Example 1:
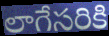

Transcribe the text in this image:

లాగేసరికి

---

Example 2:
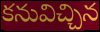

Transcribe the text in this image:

కనువిచ్చిన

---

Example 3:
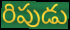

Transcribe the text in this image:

రిపుడు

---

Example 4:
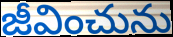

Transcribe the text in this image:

జీవించును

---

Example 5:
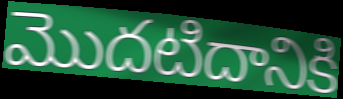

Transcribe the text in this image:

మొదటిదానికి